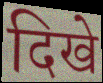
दिखे